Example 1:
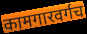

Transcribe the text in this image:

कामगारवर्गच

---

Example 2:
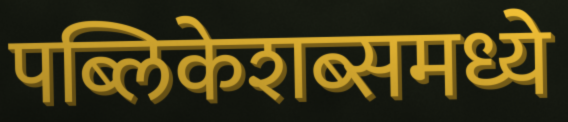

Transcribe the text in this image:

पब्लिकेशब्समध्ये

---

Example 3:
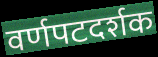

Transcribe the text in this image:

वर्णपटदर्शक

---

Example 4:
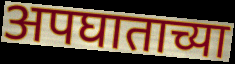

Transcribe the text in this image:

अपघाताच्या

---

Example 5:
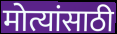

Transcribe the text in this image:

मोत्यांसाठी